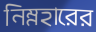
নিম্নহারের